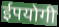
ईपयोगी